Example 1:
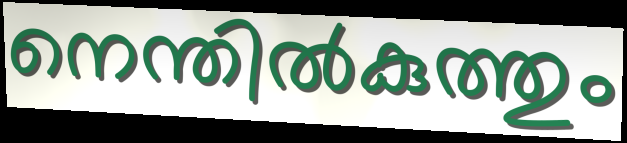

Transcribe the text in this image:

നെന്തിൽകുത്തും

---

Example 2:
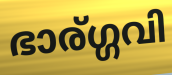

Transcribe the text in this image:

ഭാര്ഗ്ഗവി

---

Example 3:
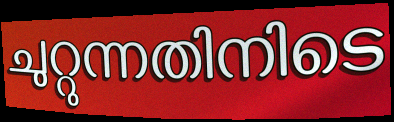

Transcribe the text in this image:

ചുറ്റുന്നതിനിടെ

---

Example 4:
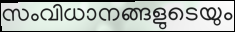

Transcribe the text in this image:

സംവിധാനങ്ങളുടെയും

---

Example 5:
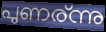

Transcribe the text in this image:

പുണര്ന്നു